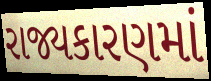
રાજ્યકારણમાં